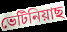
ভেটিনিয়াছ